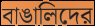
বাঙালিদের